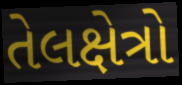
તેલક્ષેત્રો